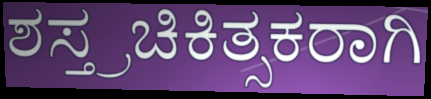
ಶಸ್ತ್ರಚಿಕಿತ್ಸಕರಾಗಿ